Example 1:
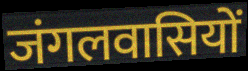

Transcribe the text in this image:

जंगलवासियों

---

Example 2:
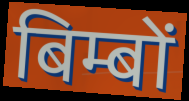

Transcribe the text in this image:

बिम्बों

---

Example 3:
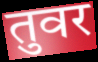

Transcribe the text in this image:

तुवर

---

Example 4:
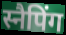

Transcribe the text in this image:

स्नैपिंग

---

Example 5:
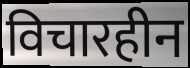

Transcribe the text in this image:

विचारहीन